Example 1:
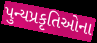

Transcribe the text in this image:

પુન્યપ્રકૃતિઓના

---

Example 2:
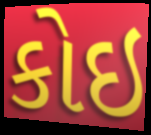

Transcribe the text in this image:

કોઇ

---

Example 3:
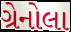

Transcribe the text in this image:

ગ્રેનોલા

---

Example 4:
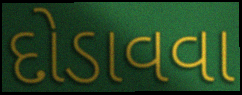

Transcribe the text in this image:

દોડાવવા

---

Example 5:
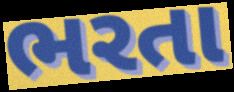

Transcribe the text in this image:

ભરતા